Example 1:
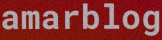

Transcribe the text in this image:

amarblog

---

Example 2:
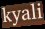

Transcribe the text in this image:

kyali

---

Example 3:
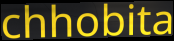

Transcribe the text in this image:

chhobita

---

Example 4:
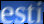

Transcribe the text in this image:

esti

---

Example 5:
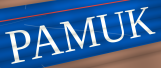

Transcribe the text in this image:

PAMUK